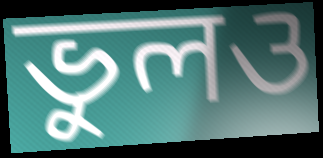
ভুলও